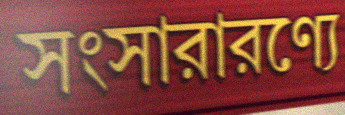
সংসারারণ্যে